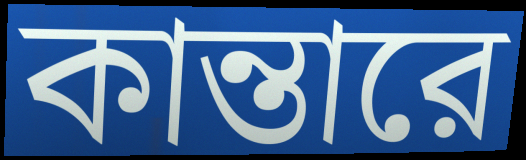
কান্তারে